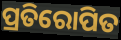
ପ୍ରତିରୋପିତ